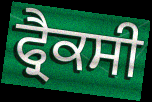
ਫ੍ਰੈਕਸੀ